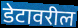
डेटावरील